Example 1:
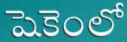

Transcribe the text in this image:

షెకెంలో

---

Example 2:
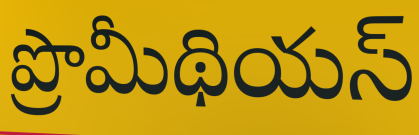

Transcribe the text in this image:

ప్రొమీథియస్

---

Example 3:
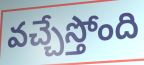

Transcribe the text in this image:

వచ్చేస్తోంది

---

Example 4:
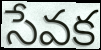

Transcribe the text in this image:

సేవక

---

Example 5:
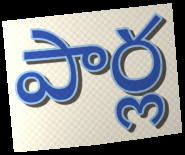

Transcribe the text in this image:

పార్ల